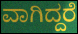
ವಾಗಿದ್ದರೆ